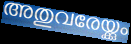
അതുവരേയ്ക്കും